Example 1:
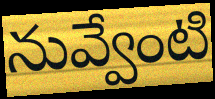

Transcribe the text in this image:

నువ్వేంటి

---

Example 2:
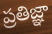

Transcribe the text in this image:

ప్రతిజ్ఞా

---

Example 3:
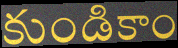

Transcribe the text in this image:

కుండికాం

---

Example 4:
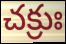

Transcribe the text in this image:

చక్రుః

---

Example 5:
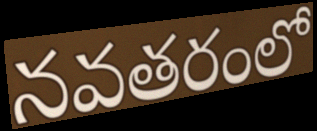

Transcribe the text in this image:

నవతరంలో